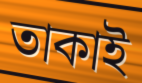
তাকাই